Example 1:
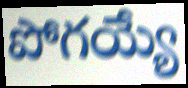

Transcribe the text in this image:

పోగయ్యే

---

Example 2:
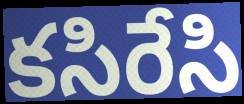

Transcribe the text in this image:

కసిరేసి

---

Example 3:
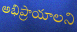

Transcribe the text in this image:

అభిప్రాయాలని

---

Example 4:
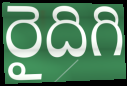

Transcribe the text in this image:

రైదిగి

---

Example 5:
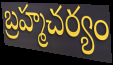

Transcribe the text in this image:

బ్రహ్మచర్యం